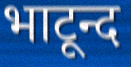
भाटून्द